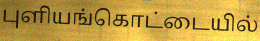
புளியங்கொட்டையில்